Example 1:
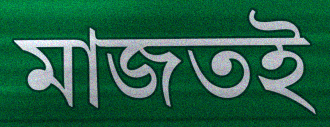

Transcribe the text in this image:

মাজতই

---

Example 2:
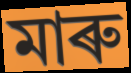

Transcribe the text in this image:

মাৰু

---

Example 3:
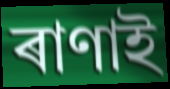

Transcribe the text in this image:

ৰাণাই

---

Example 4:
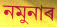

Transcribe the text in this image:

নমুনাৰ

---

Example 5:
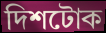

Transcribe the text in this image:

দিশটোক